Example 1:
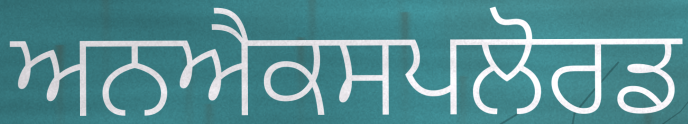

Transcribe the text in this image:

ਅਨਐਕਸਪਲੋਰਡ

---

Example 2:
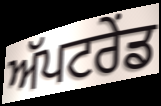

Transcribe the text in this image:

ਅੱਪਟਰੇਂਡ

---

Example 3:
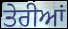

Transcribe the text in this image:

ਤੇਰੀਆਂ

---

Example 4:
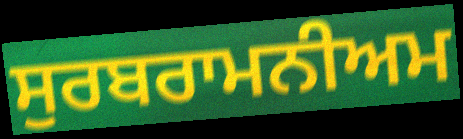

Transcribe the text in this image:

ਸੁਰਬਰਾਮਨੀਅਮ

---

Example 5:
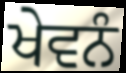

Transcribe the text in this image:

ਖੇਵਨੰ